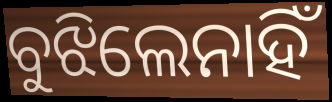
ବୁଝିଲେନାହିଁ